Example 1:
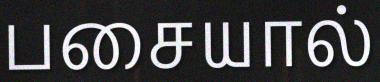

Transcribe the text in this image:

பசையால்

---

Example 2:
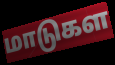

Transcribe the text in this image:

மாடுகள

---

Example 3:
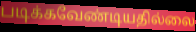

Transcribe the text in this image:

படிக்கவேண்டியதில்லை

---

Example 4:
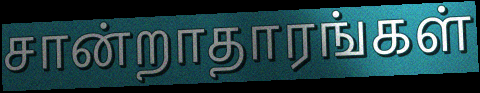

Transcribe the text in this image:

சான்றாதாரங்கள்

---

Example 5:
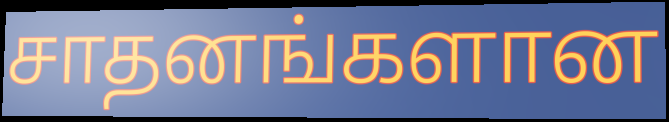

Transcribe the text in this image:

சாதனங்களான